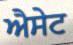
ਐਸੇਟ